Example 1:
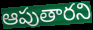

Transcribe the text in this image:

ఆపుతారని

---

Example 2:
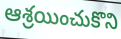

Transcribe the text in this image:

ఆశ్రయించుకొని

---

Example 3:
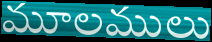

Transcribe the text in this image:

మూలములు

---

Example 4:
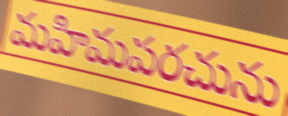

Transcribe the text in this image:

మహిమపరచును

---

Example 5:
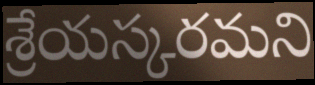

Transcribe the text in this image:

శ్రేయస్కరమని